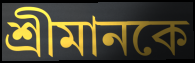
শ্রীমানকে